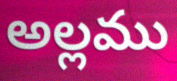
అల్లము